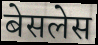
बेसलेस